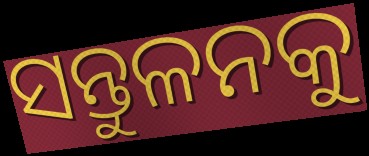
ସନ୍ତୁଳନକୁ